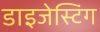
डाइजेस्टिंग